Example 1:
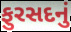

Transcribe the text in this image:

ફુરસદનું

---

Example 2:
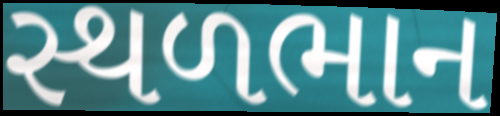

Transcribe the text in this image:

સ્થળભાન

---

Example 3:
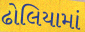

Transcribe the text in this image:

ઢોલિયામાં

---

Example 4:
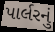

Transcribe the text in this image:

પાર્લરનું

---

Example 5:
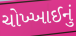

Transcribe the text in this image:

ચોખ્ખાઈનું